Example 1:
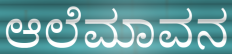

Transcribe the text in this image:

ಆಲೆಮಾವನ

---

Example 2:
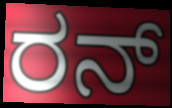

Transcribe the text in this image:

ರನ್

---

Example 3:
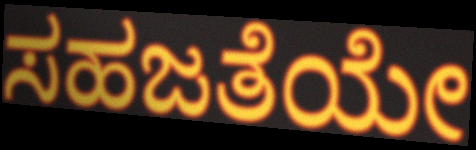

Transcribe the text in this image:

ಸಹಜತೆಯೇ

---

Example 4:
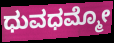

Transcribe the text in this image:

ಧುವಧಮ್ಮೋ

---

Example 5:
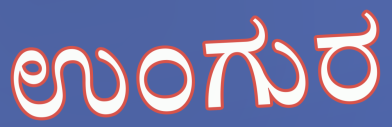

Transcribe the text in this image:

ಉಂಗುರ